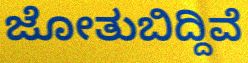
ಜೋತುಬಿದ್ದಿವೆ